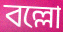
বল্লো